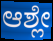
ಆಶ್ಲೇ